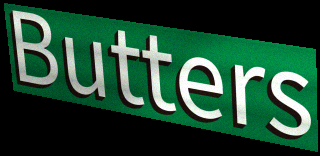
Butters